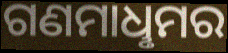
ଗଣମାଧୢମର